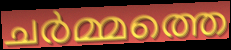
ചർമ്മത്തെ